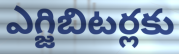
ఎగ్జిబిటర్లకు